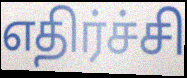
எதிர்ச்சி